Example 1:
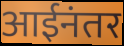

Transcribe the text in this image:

आईनंतर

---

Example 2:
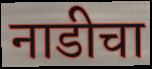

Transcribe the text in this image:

नाडीचा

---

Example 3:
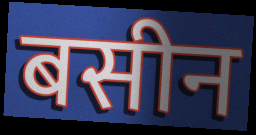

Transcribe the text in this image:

बसीन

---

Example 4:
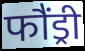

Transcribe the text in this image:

फौंड्री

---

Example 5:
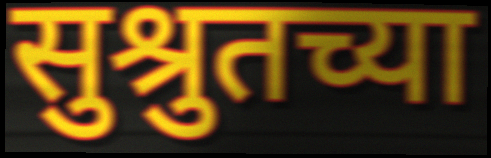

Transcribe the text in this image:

सुश्रुतच्या